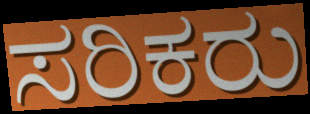
ಸರಿಕರು